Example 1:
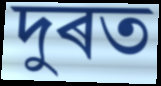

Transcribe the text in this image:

দুৰত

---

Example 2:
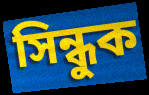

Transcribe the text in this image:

সিন্ধুক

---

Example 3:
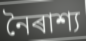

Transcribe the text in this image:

নৈৰাশ্য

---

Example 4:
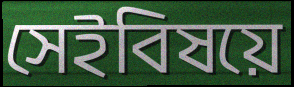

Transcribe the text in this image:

সেইবিষয়ে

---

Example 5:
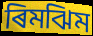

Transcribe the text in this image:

ৰিমঝিম